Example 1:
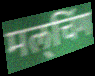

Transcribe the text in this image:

मल्चिंग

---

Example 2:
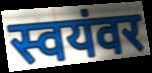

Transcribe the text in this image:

स्वयंवर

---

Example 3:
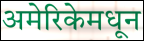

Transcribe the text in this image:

अमेरिकेमधून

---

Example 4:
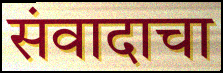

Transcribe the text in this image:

संवादाचा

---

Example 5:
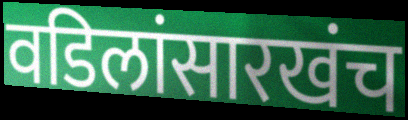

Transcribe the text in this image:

वडिलांसारखंच